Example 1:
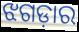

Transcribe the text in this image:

ଝଗଡ଼ାର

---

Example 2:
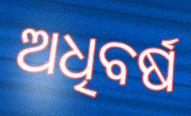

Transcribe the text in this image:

ଅଧିବର୍ଷ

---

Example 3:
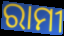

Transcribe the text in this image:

ରାମୀ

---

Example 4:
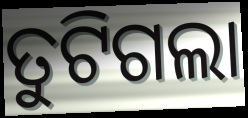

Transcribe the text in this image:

ତୁଟିଗଲା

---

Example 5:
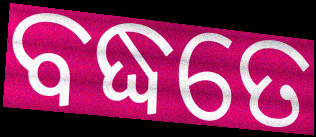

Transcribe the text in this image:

ବଦ୍ଧତେ